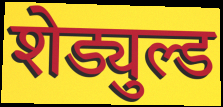
शेड्युल्ड